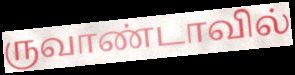
ருவாண்டாவில்